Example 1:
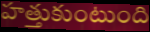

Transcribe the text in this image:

హత్తుకుంటుంది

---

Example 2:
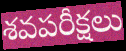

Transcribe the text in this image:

శవపరీక్షలు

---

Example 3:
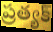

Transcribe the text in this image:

ప్రత్యక్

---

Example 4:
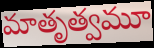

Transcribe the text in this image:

మాతృత్వమూ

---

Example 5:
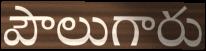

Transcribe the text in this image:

పౌలుగారు